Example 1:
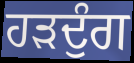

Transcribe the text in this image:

ਹੜਦੁੰਗ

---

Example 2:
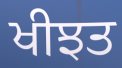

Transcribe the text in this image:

ਖੀਝਤ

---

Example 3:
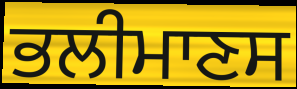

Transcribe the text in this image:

ਭਲੀਮਾਣਸ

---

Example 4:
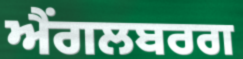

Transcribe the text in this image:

ਐਂਗਲਬਰਗ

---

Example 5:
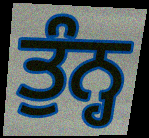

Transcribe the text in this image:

ਤੁੰਨ੍ਹ